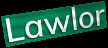
Lawlor